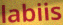
labiis